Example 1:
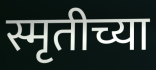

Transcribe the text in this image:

स्मृतीच्या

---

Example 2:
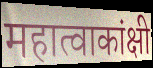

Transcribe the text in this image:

महात्वाकांक्षी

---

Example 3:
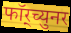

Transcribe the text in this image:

फॉर्च्युनर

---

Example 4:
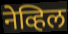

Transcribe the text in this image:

नेव्हिल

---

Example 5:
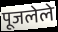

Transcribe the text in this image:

पूजलेले